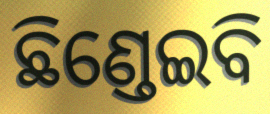
ଛିଣ୍ଡେଇବି